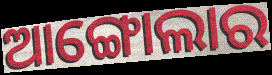
ଆଙ୍ଗୋଲାର